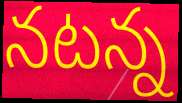
నటన్న